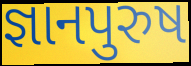
જ્ઞાનપુરુષ